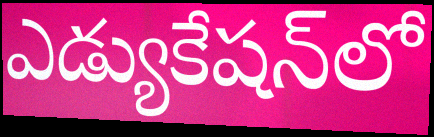
ఎడ్యుకేషన్‌లో